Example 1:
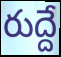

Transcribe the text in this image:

రుద్దే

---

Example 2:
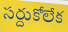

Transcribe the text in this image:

సర్దుకోలేక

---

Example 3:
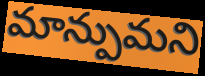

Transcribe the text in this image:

మాన్పుమని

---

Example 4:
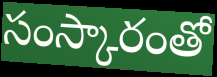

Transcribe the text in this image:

సంస్కారంతో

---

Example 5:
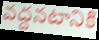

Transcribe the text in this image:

వద్దనటానికి